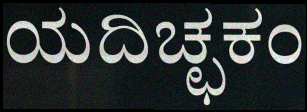
ಯದಿಚ್ಛಕಂ